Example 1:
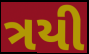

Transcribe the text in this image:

ત્રયી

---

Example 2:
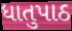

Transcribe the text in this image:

ધાતુપાઠ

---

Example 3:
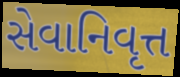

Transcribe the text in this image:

સેવાનિવૃત્ત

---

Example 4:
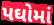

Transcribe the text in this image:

પઘોમાં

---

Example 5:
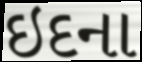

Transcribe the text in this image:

ઇદના